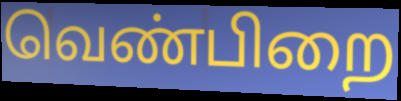
வெண்பிறை